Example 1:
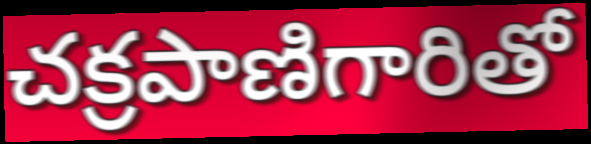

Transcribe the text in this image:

చక్రపాణిగారితో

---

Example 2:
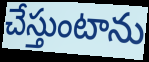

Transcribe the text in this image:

చేస్తుంటాను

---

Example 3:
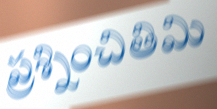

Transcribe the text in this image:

ప్రశ్నించితిమి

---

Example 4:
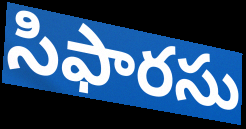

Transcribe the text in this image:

సిఫారసు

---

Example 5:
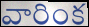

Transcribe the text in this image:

వారింక